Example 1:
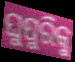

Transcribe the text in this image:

ଘୁଷୁରିକୁ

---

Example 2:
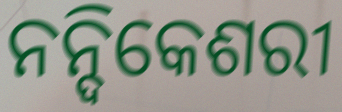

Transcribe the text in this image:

ନନ୍ଦିକେଶରୀ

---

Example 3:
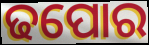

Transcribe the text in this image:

ଢପୋର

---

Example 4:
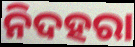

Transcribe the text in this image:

ନିଦହରା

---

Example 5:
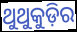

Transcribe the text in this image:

ଥୁଥୁକୁଡ଼ିର